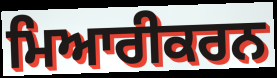
ਮਿਆਰੀਕਰਨ